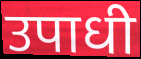
उपाधी